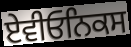
ਏਵੀਓਨਿਕਸ